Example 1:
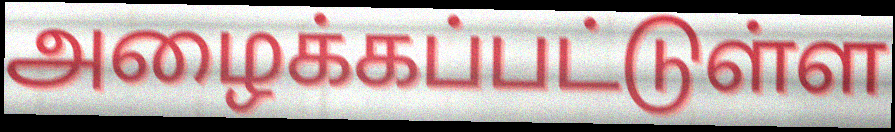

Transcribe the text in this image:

அழைக்கப்பட்டுள்ள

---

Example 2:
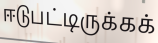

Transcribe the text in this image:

ஈடுபட்டிருக்கக்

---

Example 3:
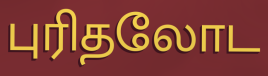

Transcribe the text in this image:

புரிதலோட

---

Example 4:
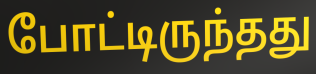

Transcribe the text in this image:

போட்டிருந்தது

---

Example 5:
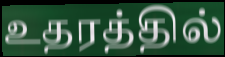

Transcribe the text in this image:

உதரத்தில்